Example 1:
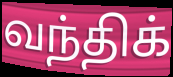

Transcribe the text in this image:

வந்திக்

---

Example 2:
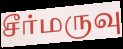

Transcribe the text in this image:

சீர்மருவு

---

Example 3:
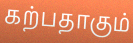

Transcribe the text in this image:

கற்பதாகும்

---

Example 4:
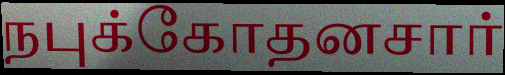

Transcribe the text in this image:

நபுக்கோதனசார்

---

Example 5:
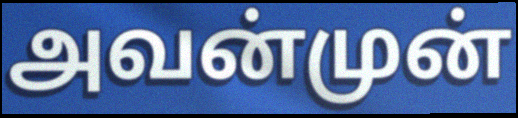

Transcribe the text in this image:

அவன்முன்